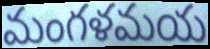
మంగళమయ